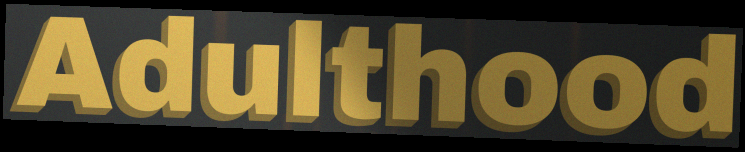
Adulthood